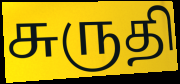
சுருதி